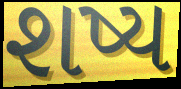
શષ્ય